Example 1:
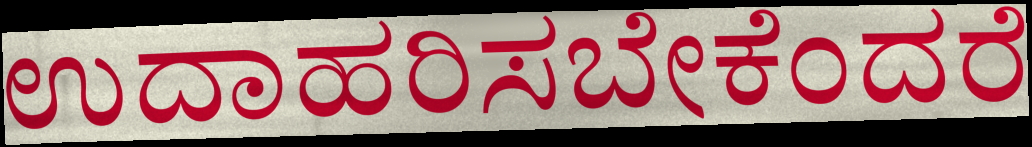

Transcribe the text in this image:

ಉದಾಹರಿಸಬೇಕೆಂದರೆ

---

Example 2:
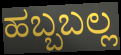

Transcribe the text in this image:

ಹಬ್ಬಬಲ್ಲ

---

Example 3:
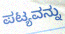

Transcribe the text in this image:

ಪಟ್ಯವನ್ನು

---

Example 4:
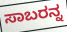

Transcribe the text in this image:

ಸಾಬರನ್ನ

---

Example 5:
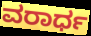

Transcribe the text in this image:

ವರಾರ್ಧ